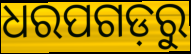
ଧରପଗଡ଼ରୁ